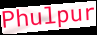
Phulpur